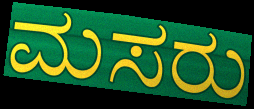
ಮಸರು